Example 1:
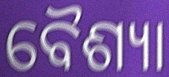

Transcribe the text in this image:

ବୈଶ୍ଯା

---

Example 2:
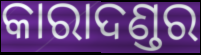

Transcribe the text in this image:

କାରାଦଣ୍ଡର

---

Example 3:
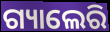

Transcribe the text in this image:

ଗ୍ୟାଲେରି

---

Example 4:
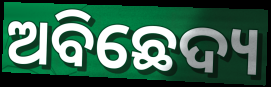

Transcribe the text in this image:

ଅବିଛେଦ୍ୟ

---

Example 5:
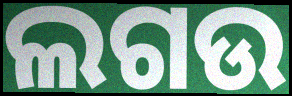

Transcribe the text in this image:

ଲଗଉ